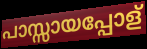
പാസ്സായപ്പോള്